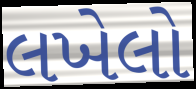
લખેલો